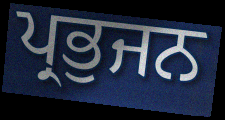
ਪ੍ਰਭੁਜਨ